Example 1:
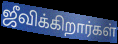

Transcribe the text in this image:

ஜீவிக்கிறார்கள்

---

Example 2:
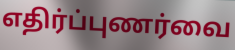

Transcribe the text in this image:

எதிர்ப்புணர்வை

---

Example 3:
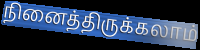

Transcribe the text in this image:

நினைத்திருக்கலாம்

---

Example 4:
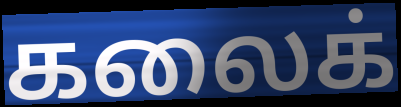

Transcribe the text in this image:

கலைக்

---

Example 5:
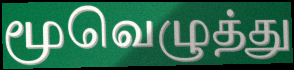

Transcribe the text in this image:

மூவெழுத்து